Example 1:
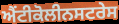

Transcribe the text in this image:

ਐਂਟੀਕੋਲੀਨਸਟਰੇਸ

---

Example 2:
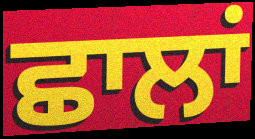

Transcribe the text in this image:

ਛਾਲਾਂ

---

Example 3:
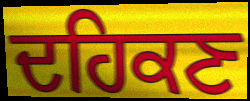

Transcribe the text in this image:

ਦਹਿਕਣ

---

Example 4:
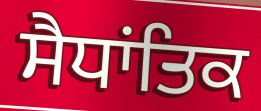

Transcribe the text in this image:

ਸੈਧਾਂਤਿਕ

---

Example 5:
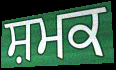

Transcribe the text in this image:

ਸ਼ਮਕ